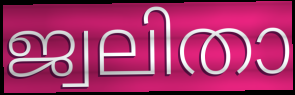
ജ്വലിതാ